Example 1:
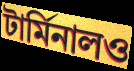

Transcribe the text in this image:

টার্মিনালও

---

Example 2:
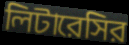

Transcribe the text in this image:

লিটারেসির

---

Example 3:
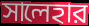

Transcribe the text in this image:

সালেহার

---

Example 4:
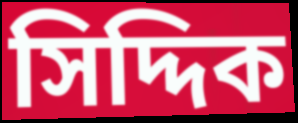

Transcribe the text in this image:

সিদ্দিক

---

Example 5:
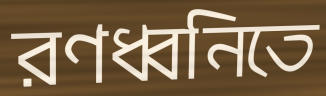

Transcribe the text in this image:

রণধ্বনিতে